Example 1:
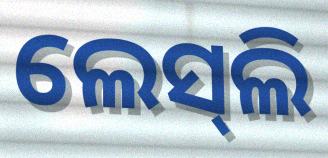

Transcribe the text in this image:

ଲେସ୍‍ଲି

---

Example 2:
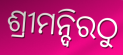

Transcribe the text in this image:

ଶ୍ରୀମନ୍ଦିରଠୁ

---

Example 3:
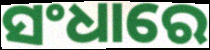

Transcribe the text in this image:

ସଂଧାରେ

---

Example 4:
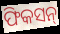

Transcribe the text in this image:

ଫିକସନ୍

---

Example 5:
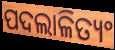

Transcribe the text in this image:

ପଦଲାଳିତ୍ୟଂ